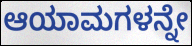
ಆಯಾಮಗಳನ್ನೇ